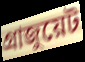
গ্রাজুয়েট